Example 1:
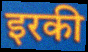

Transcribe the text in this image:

इरकी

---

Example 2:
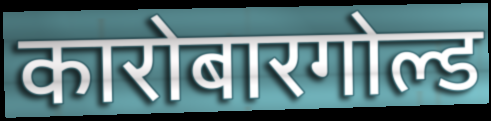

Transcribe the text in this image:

कारोबारगोल्ड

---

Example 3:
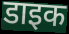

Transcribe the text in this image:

डाइक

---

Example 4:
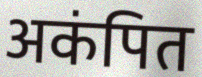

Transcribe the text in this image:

अकंपित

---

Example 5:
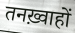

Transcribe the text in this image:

तनख़्वाहों